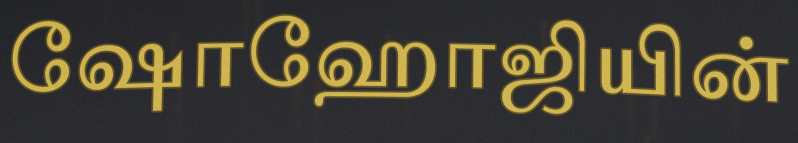
ஷோஹோஜியின்